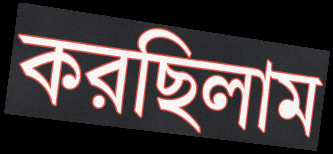
করছিলাম